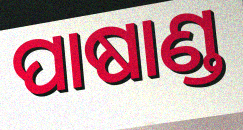
ପାଷାଣ୍ଡ